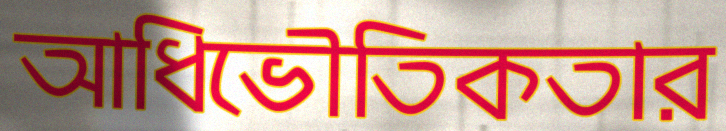
আধিভৌতিকতার